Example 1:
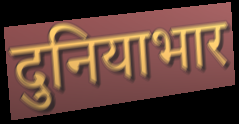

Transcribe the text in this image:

दुनियाभार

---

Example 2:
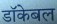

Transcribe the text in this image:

डॉकेबल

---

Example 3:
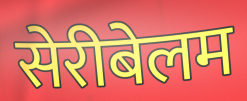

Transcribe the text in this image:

सेरीबेलम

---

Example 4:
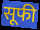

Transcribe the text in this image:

सूफी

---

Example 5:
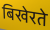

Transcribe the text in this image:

बिखेरते